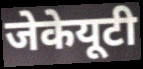
जेकेयूटी